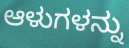
ಆಳುಗಳನ್ನು